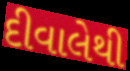
દીવાલેથી